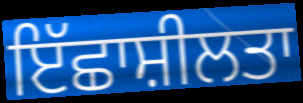
ਇੱਛਾਸ਼ੀਲਤਾ